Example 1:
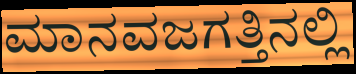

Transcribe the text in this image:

ಮಾನವಜಗತ್ತಿನಲ್ಲಿ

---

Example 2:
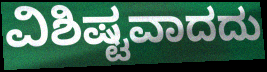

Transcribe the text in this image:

ವಿಶಿಷ್ಟವಾದದು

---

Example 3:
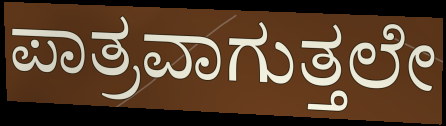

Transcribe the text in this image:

ಪಾತ್ರವಾಗುತ್ತಲೇ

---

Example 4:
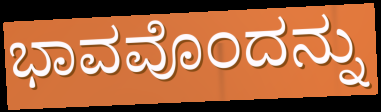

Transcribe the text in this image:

ಭಾವವೊಂದನ್ನು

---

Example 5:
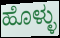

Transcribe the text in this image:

ಹೊಳ್ಳು